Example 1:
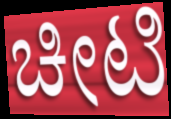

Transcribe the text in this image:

ಚೀಟಿ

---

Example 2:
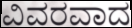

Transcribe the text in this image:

ವಿವರವಾದ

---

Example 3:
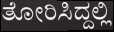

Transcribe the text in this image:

ತೋರಿಸಿದ್ದಲ್ಲಿ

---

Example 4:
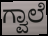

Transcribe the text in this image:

ಗ್ವಾಲೆ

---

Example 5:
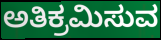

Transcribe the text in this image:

ಅತಿಕ್ರಮಿಸುವ